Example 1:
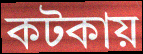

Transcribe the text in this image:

কটকায়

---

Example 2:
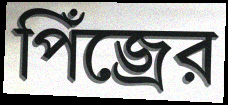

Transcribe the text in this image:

পিঁজ্রের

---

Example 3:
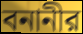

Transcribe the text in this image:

বনানীর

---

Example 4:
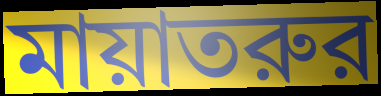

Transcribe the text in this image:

মায়াতরুর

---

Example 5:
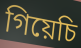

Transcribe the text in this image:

গিয়েচি